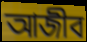
আজীব